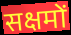
सक्षमों